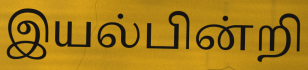
இயல்பின்றி